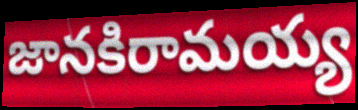
జానకిరామయ్య